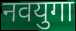
नवयुगा